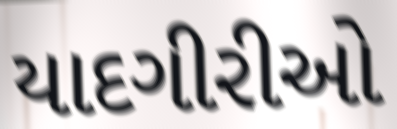
યાદગીરીઓ